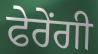
ਫੇਰੇਂਗੀ